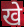
खे